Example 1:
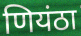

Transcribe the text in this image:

णियंठा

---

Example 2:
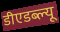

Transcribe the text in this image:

डीएडब्ल्यू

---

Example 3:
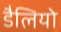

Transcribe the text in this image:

डैलियो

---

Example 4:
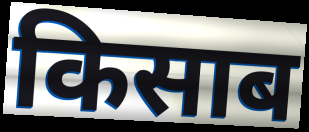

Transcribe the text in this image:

किसाब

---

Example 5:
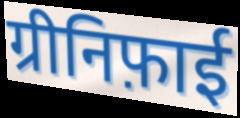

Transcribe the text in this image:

ग्रीनिफ़ाई